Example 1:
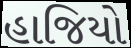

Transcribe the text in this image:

હાજિયો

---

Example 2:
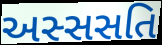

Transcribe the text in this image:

અસ્સસતિ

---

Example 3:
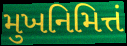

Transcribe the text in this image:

મુખનિમિત્તં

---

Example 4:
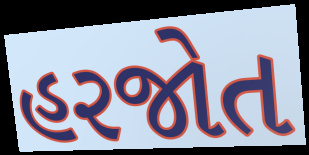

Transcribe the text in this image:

હરજોત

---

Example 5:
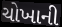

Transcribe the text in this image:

ચોખાની